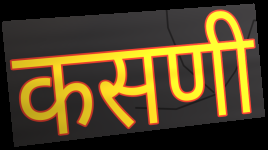
कसणी